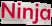
Ninja